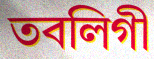
তবলিগী